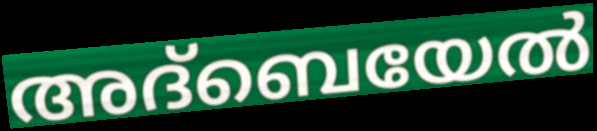
അദ്ബെയേൽ